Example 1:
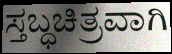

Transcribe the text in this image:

ಸ್ತಬ್ಧಚಿತ್ರವಾಗಿ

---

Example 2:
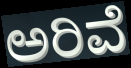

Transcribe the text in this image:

ಅರಿವೆ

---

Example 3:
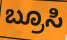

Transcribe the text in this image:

ಬ್ರೂಸಿ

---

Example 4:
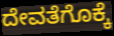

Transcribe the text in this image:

ದೇವತೆಗೊಕ್ಕೆ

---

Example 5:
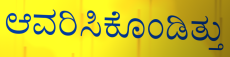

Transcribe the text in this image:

ಆವರಿಸಿಕೊಂಡಿತ್ತು